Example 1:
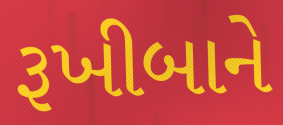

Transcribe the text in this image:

રૂખીબાને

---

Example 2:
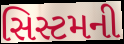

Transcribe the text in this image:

સિસ્ટમની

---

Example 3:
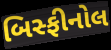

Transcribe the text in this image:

બિસ્ફીનોલ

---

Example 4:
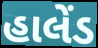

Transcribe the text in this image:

હાલેંડ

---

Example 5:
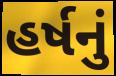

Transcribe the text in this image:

હર્ષનું